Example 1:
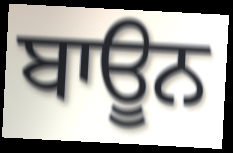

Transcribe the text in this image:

ਬਾਊਨ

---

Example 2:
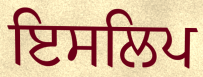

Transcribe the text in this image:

ਇਸਲਿਪ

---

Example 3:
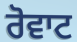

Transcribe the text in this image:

ਰੋਵਾਟ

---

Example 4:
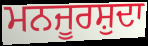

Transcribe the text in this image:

ਮਨਜੂਰਸ਼ੁਦਾ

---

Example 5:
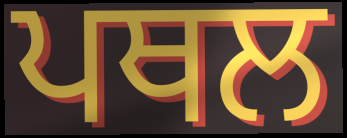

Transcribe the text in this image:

ਪਥਲ